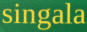
singala